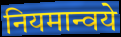
नियमान्वये